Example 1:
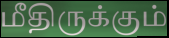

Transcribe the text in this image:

மீதிருக்கும்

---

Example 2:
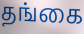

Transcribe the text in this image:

தங்கை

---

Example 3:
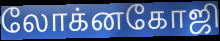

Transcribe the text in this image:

லோக்னகோஜி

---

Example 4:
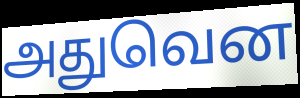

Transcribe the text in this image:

அதுவென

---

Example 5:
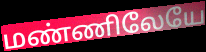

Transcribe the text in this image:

மண்ணிலேயே